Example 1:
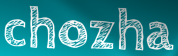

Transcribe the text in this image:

chozha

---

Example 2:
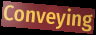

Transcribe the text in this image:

Conveying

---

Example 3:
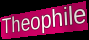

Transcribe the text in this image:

Theophile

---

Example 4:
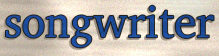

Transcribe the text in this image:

songwriter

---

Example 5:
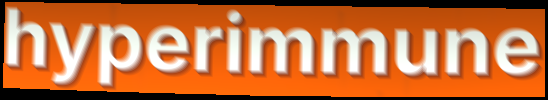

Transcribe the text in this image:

hyperimmune